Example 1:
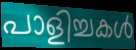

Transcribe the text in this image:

പാളിച്ചകൾ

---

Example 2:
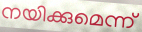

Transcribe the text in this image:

നയിക്കുമെന്ന്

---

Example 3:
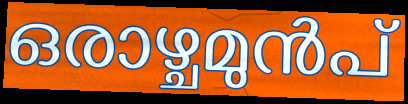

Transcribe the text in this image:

ഒരാഴ്ചമുൻപ്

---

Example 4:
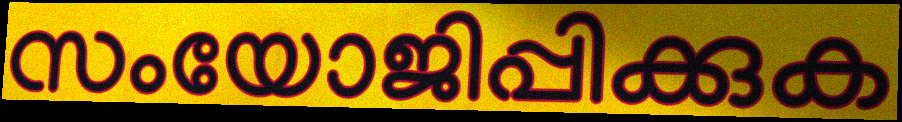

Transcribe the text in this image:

സംയോജിപ്പിക്കുക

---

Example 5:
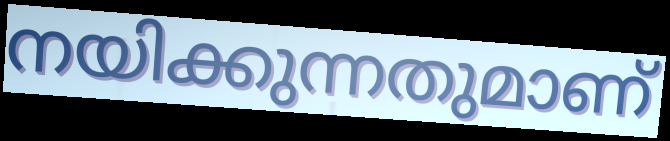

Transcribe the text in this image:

നയിക്കുന്നതുമാണ്